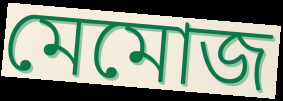
মেমোজ